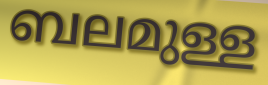
ബലമുള്ള